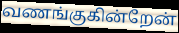
வணங்குகின்றேன்